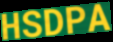
HSDPA